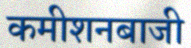
कमीशनबाजी